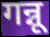
गन्नू